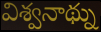
విశ్వనాథ్ను